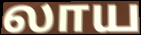
லாய